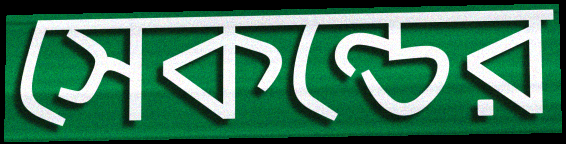
সেকন্ডের